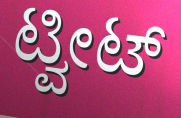
ಟ್ವೀಟ್